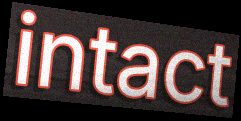
intact